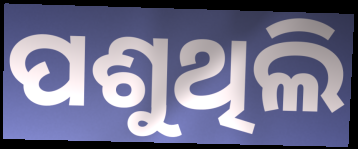
ପଶୁଥିଲି